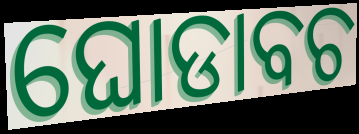
ଘୋଡାବଚ